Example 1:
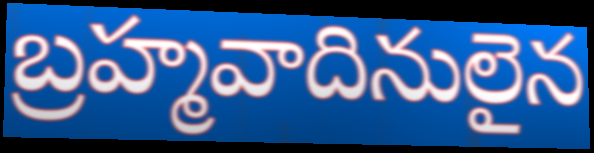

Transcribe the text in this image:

బ్రహ్మవాదినులైన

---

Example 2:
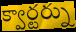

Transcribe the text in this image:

క్వార్టర్ను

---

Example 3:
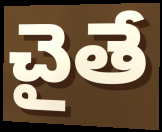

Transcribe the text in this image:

చైతే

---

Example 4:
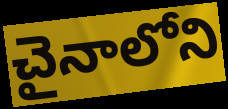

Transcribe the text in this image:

చైనాలోని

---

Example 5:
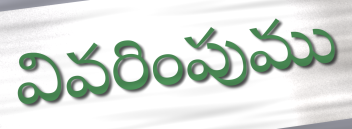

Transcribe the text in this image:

వివరింపుము